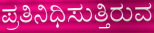
ಪ್ರತಿನಿಧಿಸುತ್ತಿರುವ